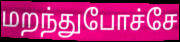
மறந்துபோச்சே